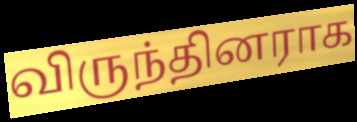
விருந்தினராக